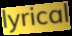
lyrical